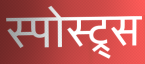
स्पोस्ट्र्स